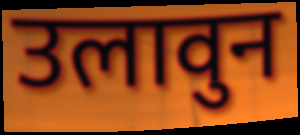
उलावुन